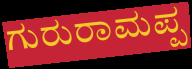
ಗುರುರಾಮಪ್ಪ